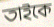
তাইকে